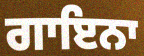
ਗਾਇਨਾ